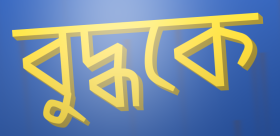
বুদ্ধকে